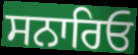
ਸਨਾਰਿਓ